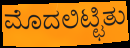
ಮೊದಲಿಟ್ಟಿತು